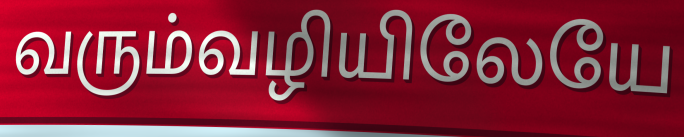
வரும்வழியிலேயே